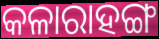
କଳାରାହଙ୍ଗ